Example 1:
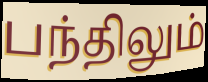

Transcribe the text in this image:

பந்திலும்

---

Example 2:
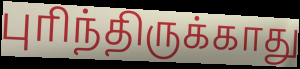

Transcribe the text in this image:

புரிந்திருக்காது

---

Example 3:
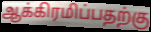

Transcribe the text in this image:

ஆக்கிரமிப்பதற்கு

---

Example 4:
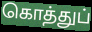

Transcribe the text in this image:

கொத்துப்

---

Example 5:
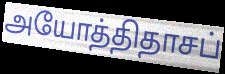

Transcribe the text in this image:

அயோத்திதாசப்